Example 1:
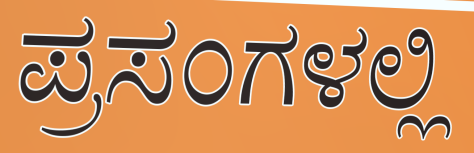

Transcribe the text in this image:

ಪ್ರಸಂಗಳಲ್ಲಿ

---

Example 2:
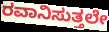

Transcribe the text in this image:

ರವಾನಿಸುತ್ತಲೇ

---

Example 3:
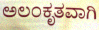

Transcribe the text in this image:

ಅಲಂಕೃತವಾಗಿ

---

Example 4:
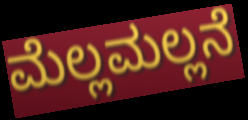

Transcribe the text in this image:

ಮೆಲ್ಲಮಲ್ಲನೆ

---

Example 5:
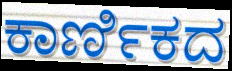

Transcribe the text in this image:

ಕಾರ್ಣಿಕದ